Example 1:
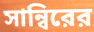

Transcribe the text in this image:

সান্বিরের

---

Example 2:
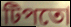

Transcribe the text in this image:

টিপতো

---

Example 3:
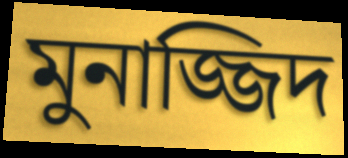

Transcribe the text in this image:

মুনাজ্জিদ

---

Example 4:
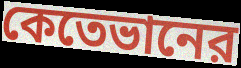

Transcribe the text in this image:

কেতেভানের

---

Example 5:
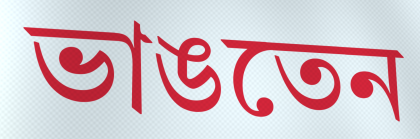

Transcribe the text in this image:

ভাঙতেন